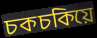
চকচকিয়ে